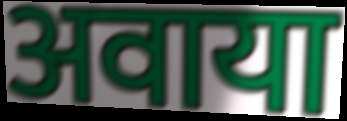
अवाया